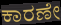
ಕಾರಣೇ